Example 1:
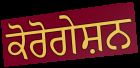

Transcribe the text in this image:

ਕੋਰੋਗੇਸ਼ਨ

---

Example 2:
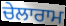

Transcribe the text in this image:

ਚੇਲਾਰਾਮ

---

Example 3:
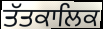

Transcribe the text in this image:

ਤੱਤਕਾਲਿਕ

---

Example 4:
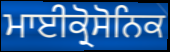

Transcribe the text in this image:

ਮਾਈਕ੍ਰੋਸੋਨਿਕ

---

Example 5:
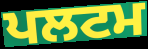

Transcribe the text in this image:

ਪਲਟਮ